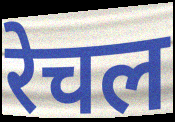
रेचल